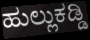
ಹುಲ್ಲುಕಡ್ಡಿ